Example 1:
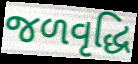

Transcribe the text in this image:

જળવૃદ્ધિ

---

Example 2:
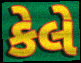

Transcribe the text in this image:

કેલે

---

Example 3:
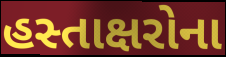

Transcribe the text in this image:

હસ્તાક્ષરોના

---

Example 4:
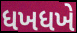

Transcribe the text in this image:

ધખધખે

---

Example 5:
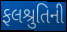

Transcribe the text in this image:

ફલશ્રુતિની